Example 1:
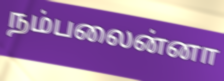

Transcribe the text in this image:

நம்பலைன்னா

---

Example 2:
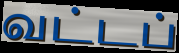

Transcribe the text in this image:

வட்டப்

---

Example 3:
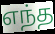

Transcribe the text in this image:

எந்த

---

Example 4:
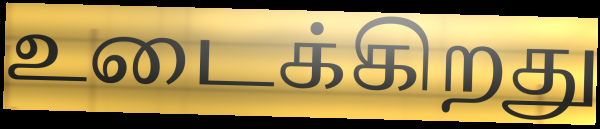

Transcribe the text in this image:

உடைக்கிறது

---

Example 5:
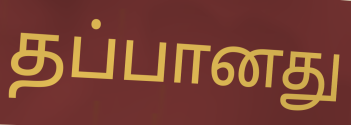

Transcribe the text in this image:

தப்பானது